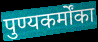
पुण्यकर्मोंका